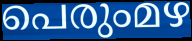
പെരുംമഴ